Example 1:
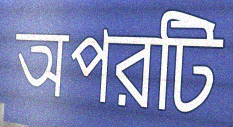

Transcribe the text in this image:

অপরটি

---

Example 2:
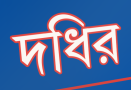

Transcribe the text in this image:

দধির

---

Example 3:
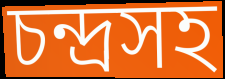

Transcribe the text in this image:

চন্দ্রসহ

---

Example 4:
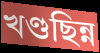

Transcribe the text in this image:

খণ্ডছিন্ন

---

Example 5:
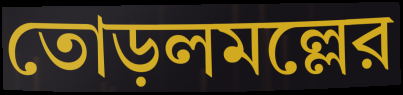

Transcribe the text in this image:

তোড়লমল্লের